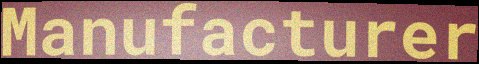
Manufacturer